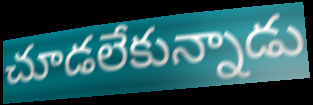
చూడలేకున్నాడు